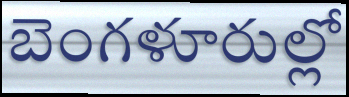
బెంగళూరుల్లో